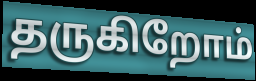
தருகிறோம்